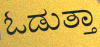
ಓಡುತ್ತಾ